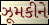
ઝૂમકીને